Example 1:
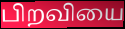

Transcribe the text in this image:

பிறவியை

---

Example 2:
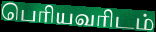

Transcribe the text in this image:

பெரியவரிடம்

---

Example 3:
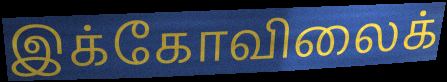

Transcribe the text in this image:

இக்கோவிலைக்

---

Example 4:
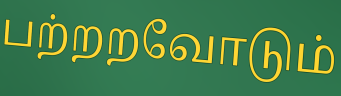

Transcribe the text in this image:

பற்றறவோடும்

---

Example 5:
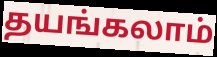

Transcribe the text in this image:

தயங்கலாம்